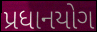
પ્રધાનયોગ